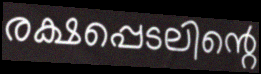
രക്ഷപ്പെടലിന്റെ